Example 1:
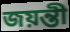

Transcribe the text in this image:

জয়ন্তী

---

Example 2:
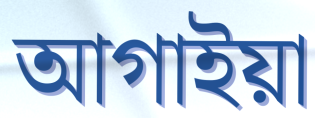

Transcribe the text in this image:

আগাইয়া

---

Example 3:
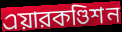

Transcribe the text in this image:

এয়ারকণ্ডিশন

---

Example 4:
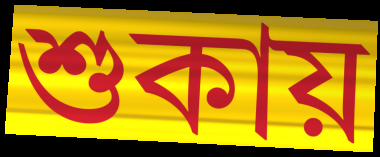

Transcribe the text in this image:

শুকায়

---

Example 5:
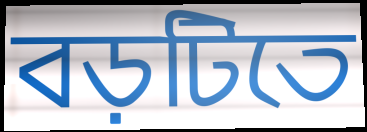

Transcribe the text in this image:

বড়টিতে